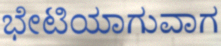
ಭೇಟಿಯಾಗುವಾಗ